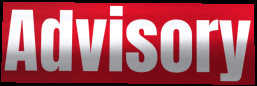
Advisory